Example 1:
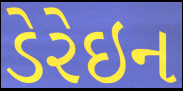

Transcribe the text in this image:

ડેરેઇન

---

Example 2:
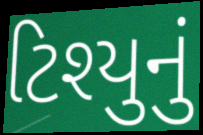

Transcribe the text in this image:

ટિશ્યુનું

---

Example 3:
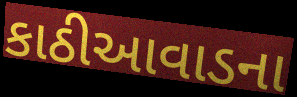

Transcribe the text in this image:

કાઠીઆવાડના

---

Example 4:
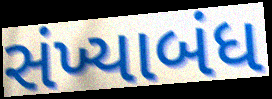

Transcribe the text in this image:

સંખ્યાબંધ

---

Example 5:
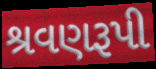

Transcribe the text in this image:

શ્રવણરૂપી